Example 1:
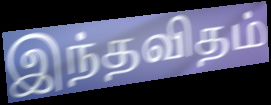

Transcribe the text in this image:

இந்தவிதம்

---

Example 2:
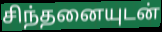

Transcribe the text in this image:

சிந்தனையுடன்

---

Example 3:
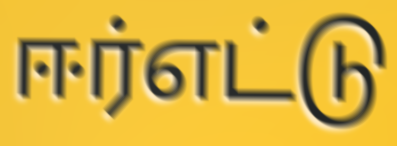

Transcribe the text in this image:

ஈர்எட்டு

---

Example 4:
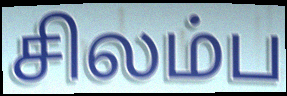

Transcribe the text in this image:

சிலம்ப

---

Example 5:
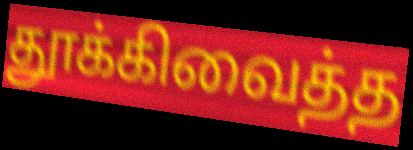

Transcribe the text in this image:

தூக்கிவைத்த